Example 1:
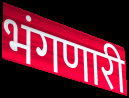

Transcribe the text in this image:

भंगणारी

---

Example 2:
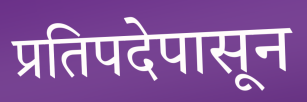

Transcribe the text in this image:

प्रतिपदेपासून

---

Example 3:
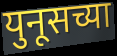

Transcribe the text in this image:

युनूसच्या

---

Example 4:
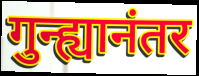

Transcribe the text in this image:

गुन्ह्यानंतर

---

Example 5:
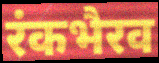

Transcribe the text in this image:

रंकभैरव